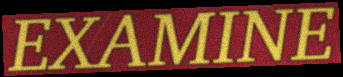
EXAMINE